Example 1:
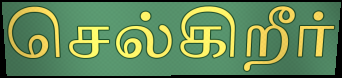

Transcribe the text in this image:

செல்கிறீர்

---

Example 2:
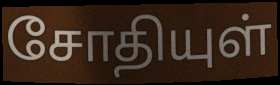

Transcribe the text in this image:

சோதியுள்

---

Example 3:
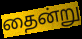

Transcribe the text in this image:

தைன்று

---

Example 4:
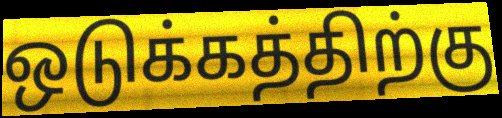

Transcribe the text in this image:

ஒடுக்கத்திற்கு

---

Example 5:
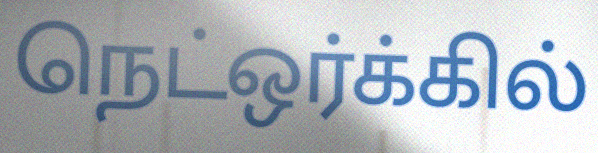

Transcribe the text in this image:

நெட்ஒர்க்கில்